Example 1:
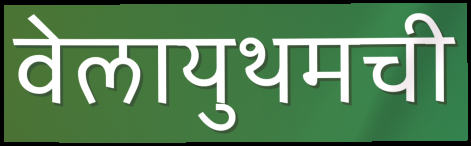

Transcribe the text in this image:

वेलायुथमची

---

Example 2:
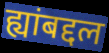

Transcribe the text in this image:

ह्यांबद्दल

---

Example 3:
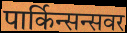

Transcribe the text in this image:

पार्किन्सन्सवर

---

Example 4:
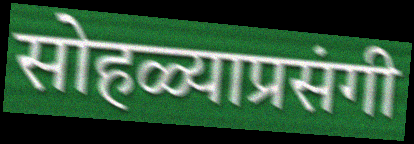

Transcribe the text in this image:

सोहळ्याप्रसंगी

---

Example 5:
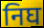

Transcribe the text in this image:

निघ